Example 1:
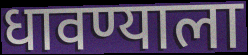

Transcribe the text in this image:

धावण्याला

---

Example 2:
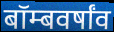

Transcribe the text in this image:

बॉम्बवर्षांव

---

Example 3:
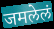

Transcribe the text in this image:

जमलेलं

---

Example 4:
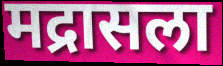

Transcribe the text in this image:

मद्रासला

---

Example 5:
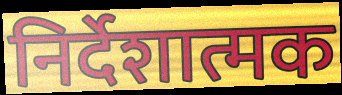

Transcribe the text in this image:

निर्देशात्मक